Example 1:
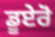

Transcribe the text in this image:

ਡੂਏਰੋ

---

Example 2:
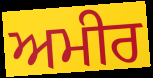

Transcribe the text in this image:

ਅਮੀਰ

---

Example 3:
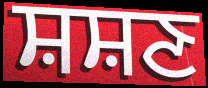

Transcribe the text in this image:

ਸ਼ਸ਼ਣ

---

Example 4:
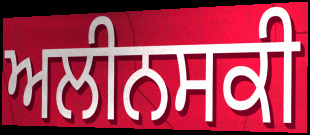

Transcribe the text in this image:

ਅਲੀਨਸਕੀ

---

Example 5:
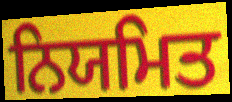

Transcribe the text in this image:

ਨਿਯਮਿਤ